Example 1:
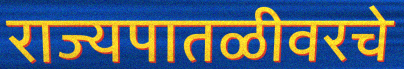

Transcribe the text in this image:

राज्यपातळीवरचे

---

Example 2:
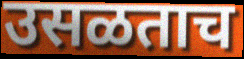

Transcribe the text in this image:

उसळताच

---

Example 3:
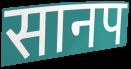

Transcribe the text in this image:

सानप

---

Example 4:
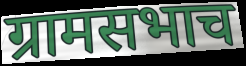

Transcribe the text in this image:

ग्रामसभाच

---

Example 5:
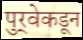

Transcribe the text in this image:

पुर्वेकडून